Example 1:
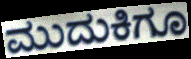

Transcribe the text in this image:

ಮುದುಕಿಗೂ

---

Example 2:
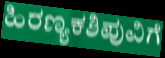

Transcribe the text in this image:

ಹಿರಣ್ಯಕಶಿಪುವಿಗೆ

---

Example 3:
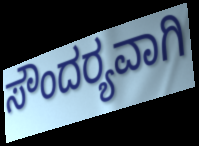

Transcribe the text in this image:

ಸೌಂದರ‍್ಯವಾಗಿ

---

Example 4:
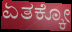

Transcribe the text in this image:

ಏತಕ್ಕೋ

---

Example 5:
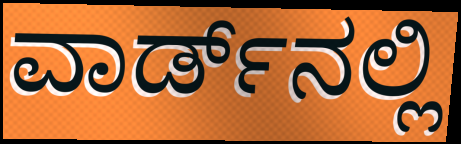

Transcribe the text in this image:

ವಾರ್ಡ್‌ನಲ್ಲಿ